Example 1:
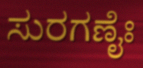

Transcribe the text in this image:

ಸುರಗಣೈಃ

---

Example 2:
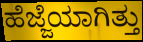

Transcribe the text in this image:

ಹೆಜ್ಜೆಯಾಗಿತ್ತು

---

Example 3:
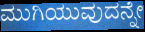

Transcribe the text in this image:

ಮುಗಿಯುವುದನ್ನೇ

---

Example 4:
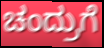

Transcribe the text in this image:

ಚಂದ್ರುಗೆ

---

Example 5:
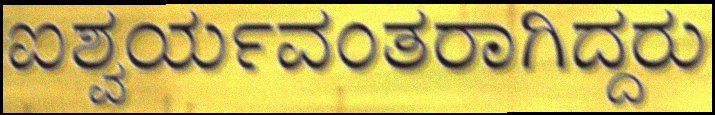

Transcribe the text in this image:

ಐಶ್ವರ್ಯವಂತರಾಗಿದ್ದರು